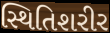
સ્થિતિશરીર